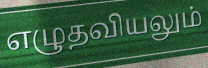
எழுதவியலும்